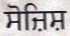
ਸੋਜ਼ਿਸ਼